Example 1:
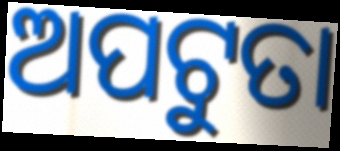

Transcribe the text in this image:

ଅପଟୁତା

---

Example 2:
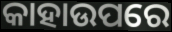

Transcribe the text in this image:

କାହାଉପରେ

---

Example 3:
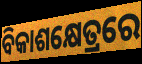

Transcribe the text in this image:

ବିକାଶକ୍ଷେତ୍ରରେ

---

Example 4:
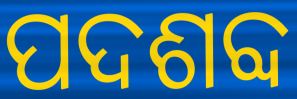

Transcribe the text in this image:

ପଦଶବ୍ଦ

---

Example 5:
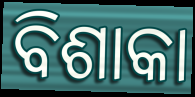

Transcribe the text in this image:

ବିଶାକା